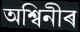
অশ্বিনীৰ